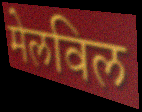
मेलविल